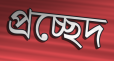
প্রচ্ছেদ